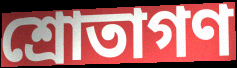
শ্রোতাগণ